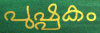
പുഷ്പകം